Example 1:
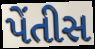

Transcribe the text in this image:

પેંતીસ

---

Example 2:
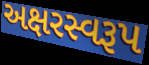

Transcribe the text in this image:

અક્ષરસ્વરૂપ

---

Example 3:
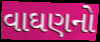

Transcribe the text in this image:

વાઘણનો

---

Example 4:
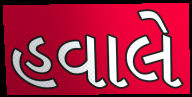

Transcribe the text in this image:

હવાલે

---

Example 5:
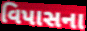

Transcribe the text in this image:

વિપાસના